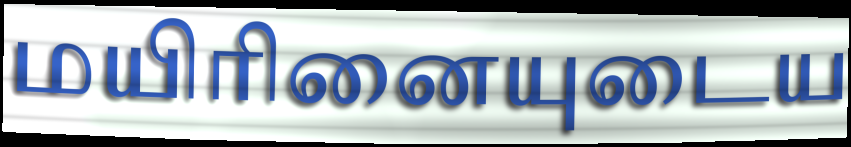
மயிரினையுடைய